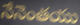
నేనెంతయు